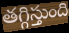
తగ్గిస్తుంది